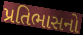
પ્રતિભાસનો